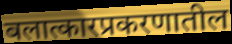
बलात्कारप्रकरणातील